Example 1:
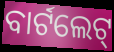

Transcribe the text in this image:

ବାର୍ଟଲେଟ୍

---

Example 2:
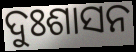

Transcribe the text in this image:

ଦୁଃଶାସନ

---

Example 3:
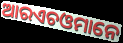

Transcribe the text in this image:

ଆରଏଚଓମାନେ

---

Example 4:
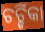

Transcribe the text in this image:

ଚର୍ଚ୍ଚିକା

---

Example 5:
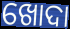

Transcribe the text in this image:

ଖୋଦା